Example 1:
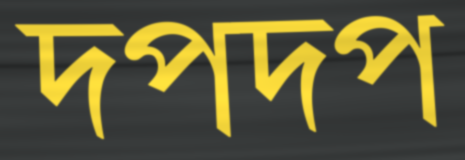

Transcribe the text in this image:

দপদপ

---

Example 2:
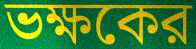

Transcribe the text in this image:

ভক্ষকের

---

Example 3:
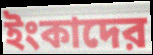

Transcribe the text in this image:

ইংকাদের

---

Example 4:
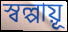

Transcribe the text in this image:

স্বল্পায়ূ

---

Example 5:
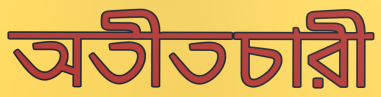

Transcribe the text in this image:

অতীতচারী